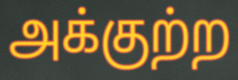
அக்குற்ற